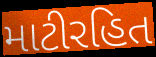
માટીરહિત